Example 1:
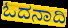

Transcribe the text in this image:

ಓದನಾದಿ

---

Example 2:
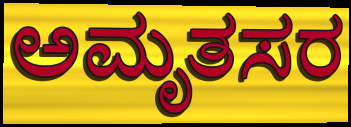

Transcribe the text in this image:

ಅಮೃತಸರ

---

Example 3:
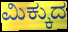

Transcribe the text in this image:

ಮಿಕ್ಕುದ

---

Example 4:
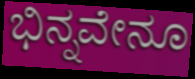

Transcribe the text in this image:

ಭಿನ್ನವೇನೂ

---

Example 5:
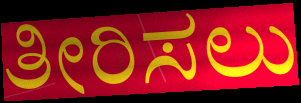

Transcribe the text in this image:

ತೀರಿಸಲು